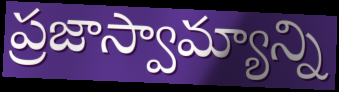
ప్రజాస్వామ్యాన్ని